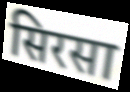
सिरसा